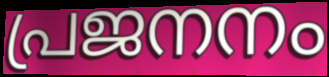
പ്രജനനം